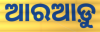
ଆରଆଡ଼ୁ